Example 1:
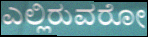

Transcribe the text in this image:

ಎಲ್ಲಿರುವರೋ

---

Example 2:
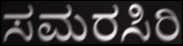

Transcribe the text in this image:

ಸಮರಸಿರಿ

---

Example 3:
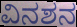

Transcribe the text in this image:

ವಿನಶನ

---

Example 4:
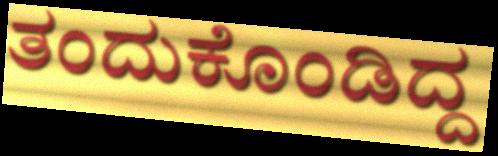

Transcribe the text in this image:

ತಂದುಕೊಂಡಿದ್ದ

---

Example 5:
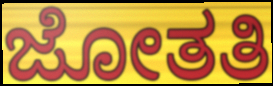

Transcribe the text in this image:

ಜೋತತಿ